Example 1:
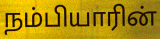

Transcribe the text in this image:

நம்பியாரின்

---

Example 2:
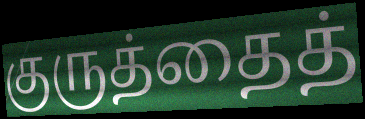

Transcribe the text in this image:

குருத்தைத்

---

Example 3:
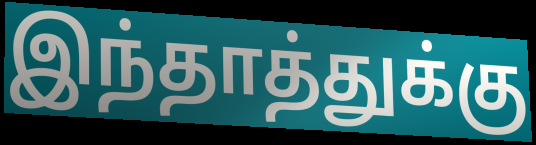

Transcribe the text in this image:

இந்தாத்துக்கு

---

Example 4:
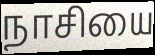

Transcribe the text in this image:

நாசியை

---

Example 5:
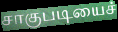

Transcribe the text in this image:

சாகுபடியைச்